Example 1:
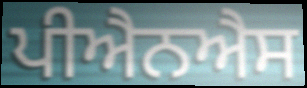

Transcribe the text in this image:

ਪੀਐਨਐਸ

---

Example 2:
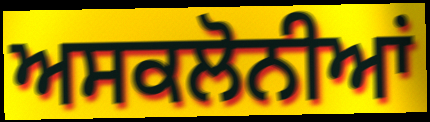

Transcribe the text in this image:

ਅਸਕਲੋਨੀਆਂ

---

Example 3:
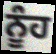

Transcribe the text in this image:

ਨੂੰਹ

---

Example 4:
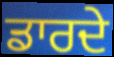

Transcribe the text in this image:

ਡਾਰਦੇ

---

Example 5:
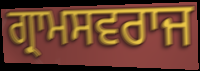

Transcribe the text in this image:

ਗ੍ਰਾਮਸਵਰਾਜ